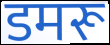
डमरू